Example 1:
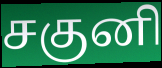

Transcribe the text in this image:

சகுனி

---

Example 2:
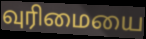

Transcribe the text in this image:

வுரிமையை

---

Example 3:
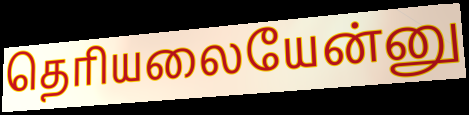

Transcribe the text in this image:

தெரியலையேன்னு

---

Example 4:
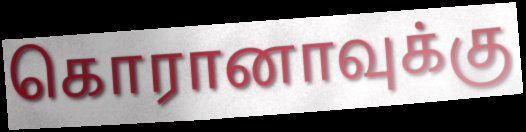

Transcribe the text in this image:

கொரானாவுக்கு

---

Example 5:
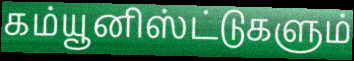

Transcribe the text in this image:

கம்யூனிஸ்ட்டுகளும்